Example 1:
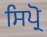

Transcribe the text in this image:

ਸਿਪ੍ਰੋ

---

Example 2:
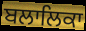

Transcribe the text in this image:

ਬਲਾਲਿਕਾ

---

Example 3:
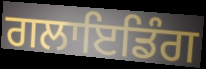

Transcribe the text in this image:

ਗਲਾਇਡਿੰਗ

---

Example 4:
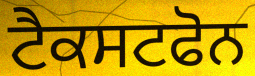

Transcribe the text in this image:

ਟੈਕਸਟਫੋਨ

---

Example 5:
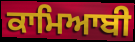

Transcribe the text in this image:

ਕਾਮਿਆਬੀ